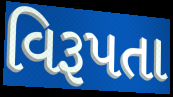
વિરૂપતા